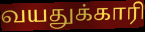
வயதுக்காரி